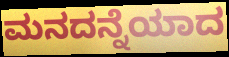
ಮನದನ್ನೆಯಾದ